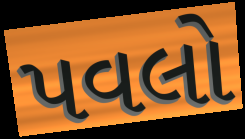
પવલો